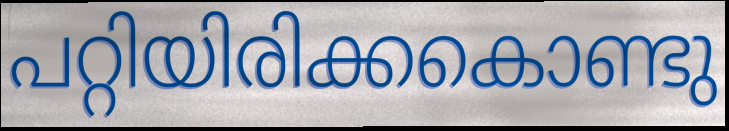
പറ്റിയിരിക്കകൊണ്ടു